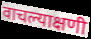
वाचल्याक्षणी